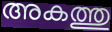
അകത്തു